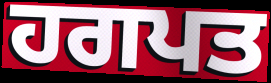
ਹਗਪਤ